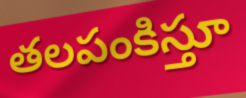
తలపంకిస్తూ